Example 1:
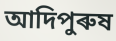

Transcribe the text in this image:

আদিপুৰুষ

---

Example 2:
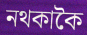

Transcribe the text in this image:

নথকাকৈ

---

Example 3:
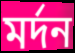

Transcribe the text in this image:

মৰ্দন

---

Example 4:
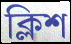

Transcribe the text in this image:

ক্লিশ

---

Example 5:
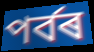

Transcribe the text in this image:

পৰ্বৰ